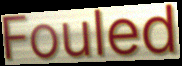
Fouled